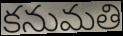
కనుమతి